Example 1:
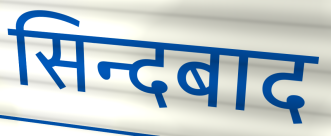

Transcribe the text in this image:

सिन्दबाद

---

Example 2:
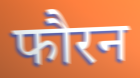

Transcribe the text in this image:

फौरन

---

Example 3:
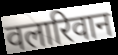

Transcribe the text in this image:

वलारिवान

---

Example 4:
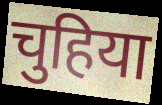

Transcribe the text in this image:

चुहिया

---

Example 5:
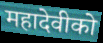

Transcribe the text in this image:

महादेवीको